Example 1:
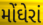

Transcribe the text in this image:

મોંઘેરાં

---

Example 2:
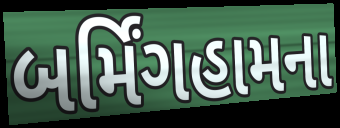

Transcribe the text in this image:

બર્મિંગહામના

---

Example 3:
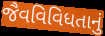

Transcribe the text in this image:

જૈવવિવિધતાનું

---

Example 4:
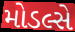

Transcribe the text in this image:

મોડલ્સે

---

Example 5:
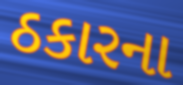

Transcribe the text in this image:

ઠકારના